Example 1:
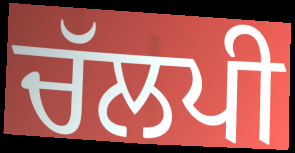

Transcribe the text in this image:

ਚੱਲਪੀ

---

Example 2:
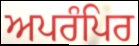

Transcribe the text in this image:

ਅਪਰੰਪਿਰ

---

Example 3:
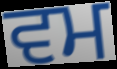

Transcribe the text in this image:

ਵਮ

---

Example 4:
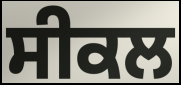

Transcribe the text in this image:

ਸੀਕਲ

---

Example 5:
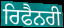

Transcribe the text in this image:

ਰਿਫੈਨਰੀ